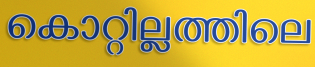
കൊറ്റില്ലത്തിലെ